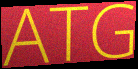
ATG